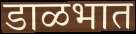
डाळभात